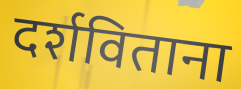
दर्शविताना